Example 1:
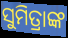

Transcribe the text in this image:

ସୁମିତ୍ରାଙ୍କ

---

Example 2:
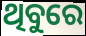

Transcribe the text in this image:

ଥିବୁରେ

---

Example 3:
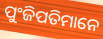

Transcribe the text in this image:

ପୁଂଜିପତିମାନେ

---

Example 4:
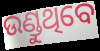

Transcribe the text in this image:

ଉଣ୍ଡୁଥିବେ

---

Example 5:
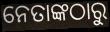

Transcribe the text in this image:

ନେତାଙ୍କଠାରୁ